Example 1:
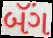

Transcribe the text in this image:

બૅંગ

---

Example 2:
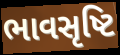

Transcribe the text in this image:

ભાવસૃષ્ટિ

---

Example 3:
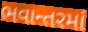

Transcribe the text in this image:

ભવાન્તરમાં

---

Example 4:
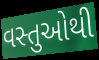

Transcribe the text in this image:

વસ્તુઓથી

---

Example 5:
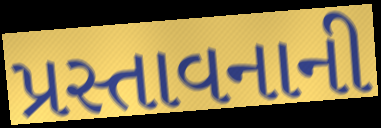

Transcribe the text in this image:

પ્રસ્તાવનાની